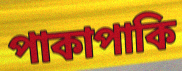
পাকাপাকি